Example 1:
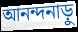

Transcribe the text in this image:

আনন্দনাড়ু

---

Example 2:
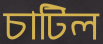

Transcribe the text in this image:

চাটিল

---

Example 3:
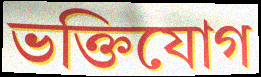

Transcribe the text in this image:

ভক্তিযোগ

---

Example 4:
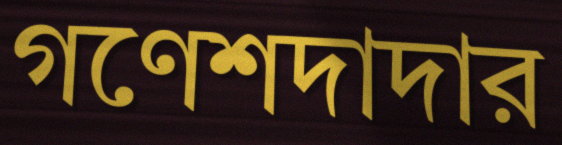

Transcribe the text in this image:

গণেশদাদার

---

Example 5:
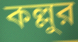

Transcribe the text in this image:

কল্লুর